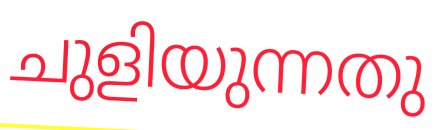
ചുളിയുന്നതു